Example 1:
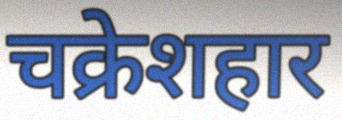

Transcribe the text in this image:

चक्रेशहार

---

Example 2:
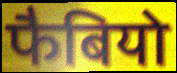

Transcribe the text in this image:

फैबियो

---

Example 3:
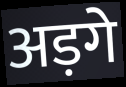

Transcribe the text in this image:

अड़गे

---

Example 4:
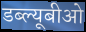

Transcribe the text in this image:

डब्ल्यूबीओ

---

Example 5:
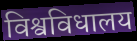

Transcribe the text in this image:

विश्वविधालय